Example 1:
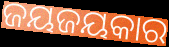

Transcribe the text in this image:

ଜୟଜୟକାର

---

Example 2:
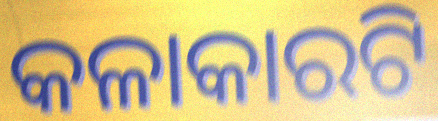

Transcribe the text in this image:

କଳାକାରଟି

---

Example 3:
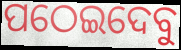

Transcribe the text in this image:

ପଠେଇଦେବୁ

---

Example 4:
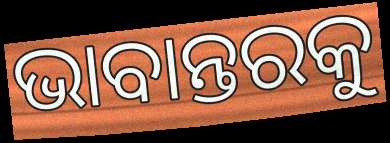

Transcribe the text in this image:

ଭାବାନ୍ତରକୁ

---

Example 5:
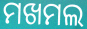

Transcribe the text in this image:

ମଖମଲ